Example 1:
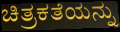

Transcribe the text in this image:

ಚಿತ್ರಕತೆಯನ್ನು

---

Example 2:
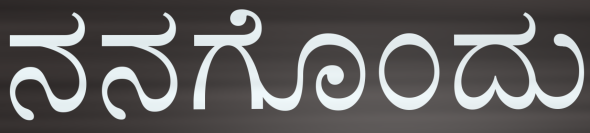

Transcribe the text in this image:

ನನಗೊಂದು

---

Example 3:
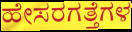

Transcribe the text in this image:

ಹೇಸರಗತ್ತೆಗಳ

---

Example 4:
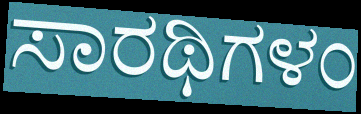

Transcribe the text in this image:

ಸಾರಥಿಗಳಂ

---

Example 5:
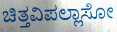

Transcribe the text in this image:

ಚಿತ್ತವಿಪಲ್ಲಾಸೋ